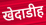
खेदाडीह